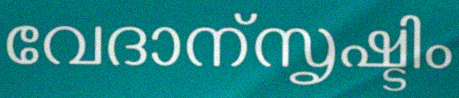
വേദാന്സൃഷ്ടിം